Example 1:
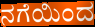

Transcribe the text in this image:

ನಗೆಯಿಂದ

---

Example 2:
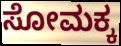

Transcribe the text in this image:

ಸೋಮಕ್ಕ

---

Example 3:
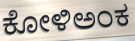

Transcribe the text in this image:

ಕೋಳಿಅಂಕ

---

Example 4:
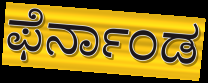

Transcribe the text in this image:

ಫೆರ್ನಾಂಡ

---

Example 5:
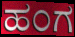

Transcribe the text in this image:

ಹಂಗ